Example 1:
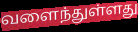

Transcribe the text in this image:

வளைந்துள்ளது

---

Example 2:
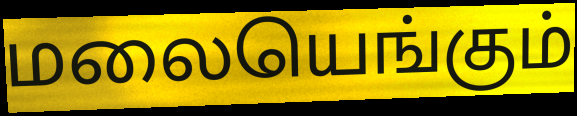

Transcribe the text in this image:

மலையெங்கும்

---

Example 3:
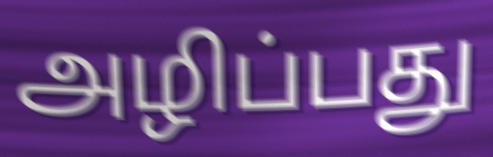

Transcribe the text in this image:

அழிப்பது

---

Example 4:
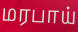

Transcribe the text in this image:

மரபாய்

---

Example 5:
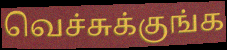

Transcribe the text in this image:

வெச்சுக்குங்க